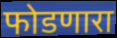
फोडणारा